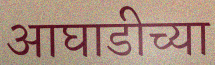
आघाडीच्या